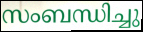
സംബന്ധിച്ചു